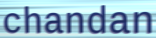
chandan